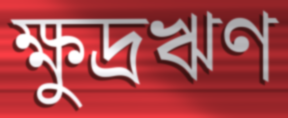
ক্ষুদ্রঋণ